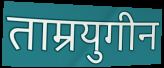
ताम्रयुगीन